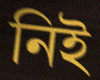
নিই